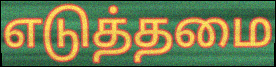
எடுத்தமை